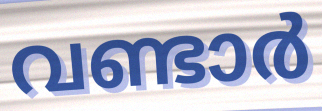
വണ്ടാർ